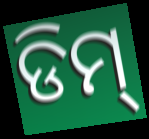
ଡିମ୍